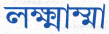
লক্ষ্মাম্মা